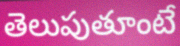
తెలుపుతూంటే